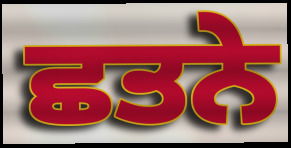
ਛਤਨੇ